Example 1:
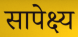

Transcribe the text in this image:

सापेक्ष्य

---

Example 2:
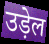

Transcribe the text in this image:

उड़ेल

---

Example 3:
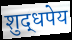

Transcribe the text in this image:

शुद्धपेय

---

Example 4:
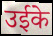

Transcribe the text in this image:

उईके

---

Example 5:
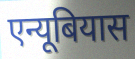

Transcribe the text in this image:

एन्यूबियास